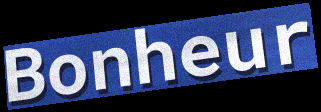
Bonheur